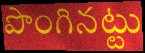
పొంగినట్టు